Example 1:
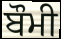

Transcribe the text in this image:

ਬੌਮੀ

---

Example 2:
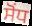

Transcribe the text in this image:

ਸੋਂਧ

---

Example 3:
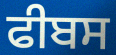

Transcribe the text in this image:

ਫੀਬਸ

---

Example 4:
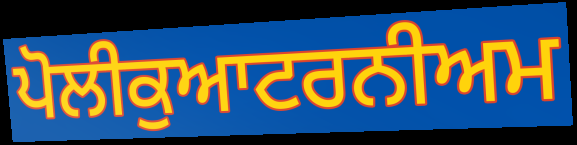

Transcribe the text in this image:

ਪੋਲੀਕੁਆਟਰਨੀਅਮ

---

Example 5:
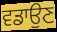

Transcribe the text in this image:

ਵਡਾਉਣ